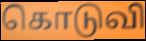
கொடுவி